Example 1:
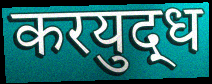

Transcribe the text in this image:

करयुद्ध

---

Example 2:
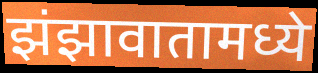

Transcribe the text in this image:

झंझावातामध्ये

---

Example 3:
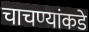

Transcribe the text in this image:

चाचण्यांकडे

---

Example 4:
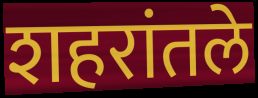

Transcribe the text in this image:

शहरांतले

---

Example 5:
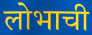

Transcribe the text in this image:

लोभाची